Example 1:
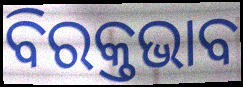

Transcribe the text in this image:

ବିରକ୍ତଭାବ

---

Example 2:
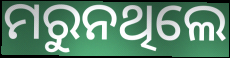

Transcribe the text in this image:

ମରୁନଥିଲେ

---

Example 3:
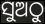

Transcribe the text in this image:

ସୁଅଠୁ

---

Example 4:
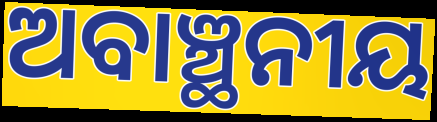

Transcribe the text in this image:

ଅବାଞ୍ଛନୀୟ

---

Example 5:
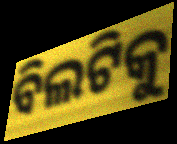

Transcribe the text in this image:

ବିଲଟିକୁ